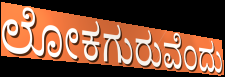
ಲೋಕಗುರುವೆಂದು